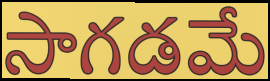
సాగడమే